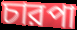
চারপা